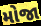
મોજા